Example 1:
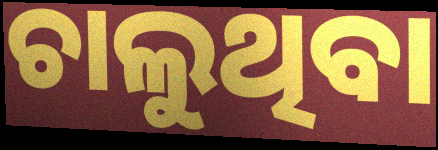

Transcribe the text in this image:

ଚାଲୁଥିବା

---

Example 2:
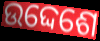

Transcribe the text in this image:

ଉଦ୍ଦେଶେ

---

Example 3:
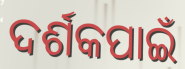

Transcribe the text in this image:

ଦର୍ଶକପାଇଁ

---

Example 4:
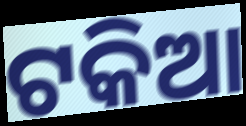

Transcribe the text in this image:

ଟକିଆ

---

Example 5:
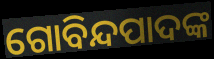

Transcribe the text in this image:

ଗୋବିନ୍ଦପାଦଙ୍କ